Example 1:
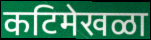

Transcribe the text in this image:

कटिमेखळा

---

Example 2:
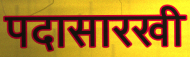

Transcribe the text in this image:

पदासारखी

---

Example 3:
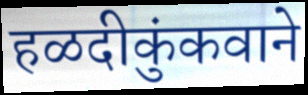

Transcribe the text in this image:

हळदीकुंकवाने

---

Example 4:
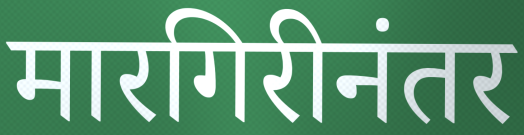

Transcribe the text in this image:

मारगिरीनंतर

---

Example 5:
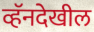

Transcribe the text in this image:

व्हॅनदेखील